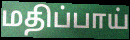
மதிப்பாய்